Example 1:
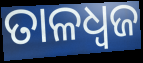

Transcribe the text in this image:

ତାଳଧ୍ୱଜ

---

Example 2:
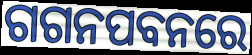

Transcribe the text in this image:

ଗଗନପବନରେ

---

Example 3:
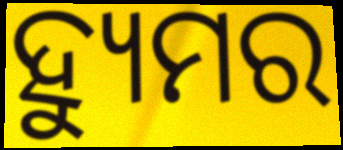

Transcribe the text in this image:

ହ୍ୟୁମର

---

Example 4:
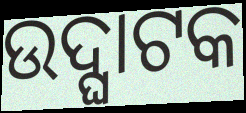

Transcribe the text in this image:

ଉଦ୍ଘାଟକ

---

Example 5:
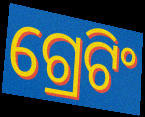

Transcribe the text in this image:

ଗ୍ରେଟିଂ